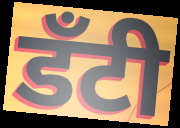
डँटी